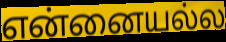
என்னையல்ல